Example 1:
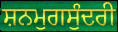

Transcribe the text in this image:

ਸ਼ਨਮੁਗਸੁੰਦਰੀ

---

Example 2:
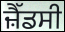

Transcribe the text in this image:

ਜ਼ੈੱਡਸੀ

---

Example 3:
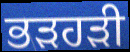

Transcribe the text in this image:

ਭੜਹੜੀ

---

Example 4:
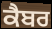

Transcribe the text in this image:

ਕੈਬਰ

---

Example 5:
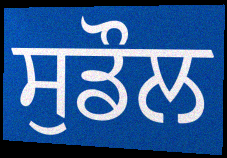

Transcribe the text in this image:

ਸੁਡੌਲ